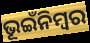
ଭୂଇଁନିମ୍ବର